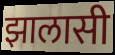
झालासी